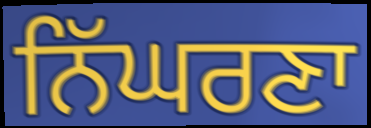
ਨਿੱਘਰਣਾ